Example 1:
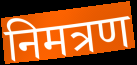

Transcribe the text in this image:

निमत्रण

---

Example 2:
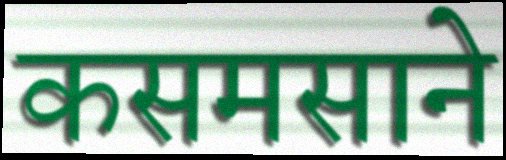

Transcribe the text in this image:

कसमसाने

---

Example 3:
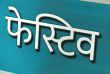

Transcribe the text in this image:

फेस्टिव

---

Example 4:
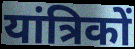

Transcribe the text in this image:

यांत्रिकों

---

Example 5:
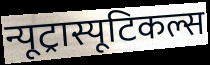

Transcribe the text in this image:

न्यूट्रास्यूटिकल्स